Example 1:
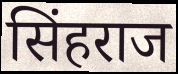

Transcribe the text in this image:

सिंहराज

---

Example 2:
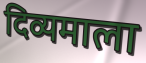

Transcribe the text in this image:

दिव्यमाला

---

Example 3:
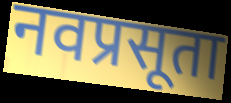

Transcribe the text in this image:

नवप्रसूता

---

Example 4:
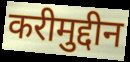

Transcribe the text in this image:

करीमुद्दीन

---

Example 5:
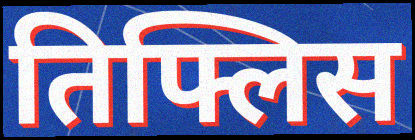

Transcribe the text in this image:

तिफ्लिस